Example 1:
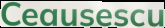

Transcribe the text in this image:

Ceausescu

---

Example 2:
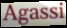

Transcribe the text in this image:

Agassi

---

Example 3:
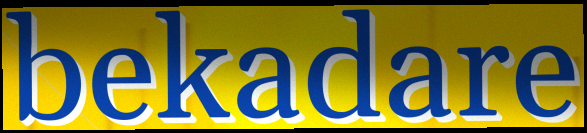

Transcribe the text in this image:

bekadare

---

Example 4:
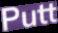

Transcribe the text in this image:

Putt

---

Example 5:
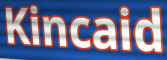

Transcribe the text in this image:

Kincaid